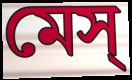
মেস্